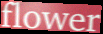
flower